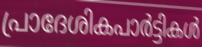
പ്രാദേശികപാർട്ടികൾ